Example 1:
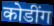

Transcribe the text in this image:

कोडींग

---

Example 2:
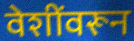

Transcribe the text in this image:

वेशींवरून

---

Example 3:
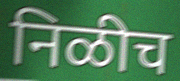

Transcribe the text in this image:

निळीच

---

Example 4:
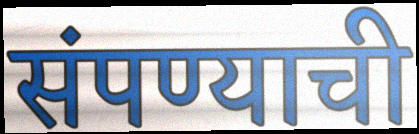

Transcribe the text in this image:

संपण्याची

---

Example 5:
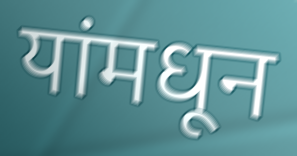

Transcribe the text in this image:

यांमधून